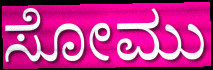
ಸೋಮು